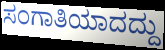
ಸಂಗಾತಿಯಾದದ್ದು